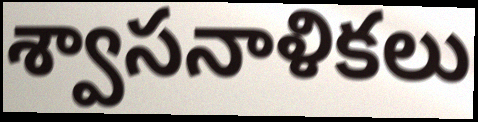
శ్వాసనాళికలు